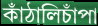
কাঁঠালিচাঁপা